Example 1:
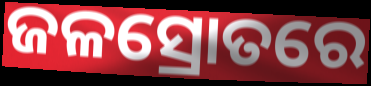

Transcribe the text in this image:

ଜଳସ୍ରୋତରେ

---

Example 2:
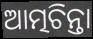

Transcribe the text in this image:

ଆତ୍ମଚିନ୍ତା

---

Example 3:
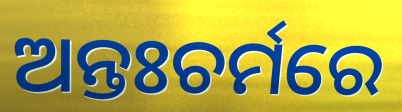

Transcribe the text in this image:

ଅନ୍ତଃଚର୍ମରେ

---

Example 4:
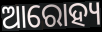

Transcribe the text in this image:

ଆରୋହ୍ୟ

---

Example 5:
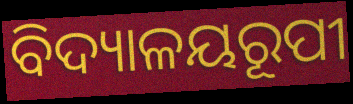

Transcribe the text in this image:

ବିଦ୍ୟାଳୟରୂପୀ